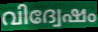
വിദ്വേഷം